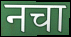
नचा